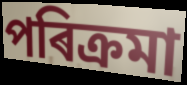
পৰিক্ৰমা